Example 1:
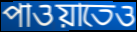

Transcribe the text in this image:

পাওয়াতেও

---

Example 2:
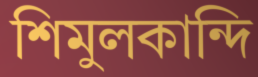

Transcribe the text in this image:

শিমুলকান্দি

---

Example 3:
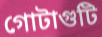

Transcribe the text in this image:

গোটাগুটি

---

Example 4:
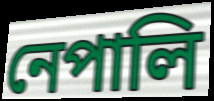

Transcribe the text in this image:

নেপালি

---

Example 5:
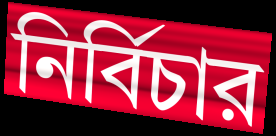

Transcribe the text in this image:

নির্বিচার